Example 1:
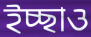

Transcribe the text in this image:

ইচ্ছাও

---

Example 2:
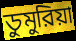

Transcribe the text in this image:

ডুমুরিয়া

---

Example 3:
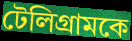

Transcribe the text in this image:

টেলিগ্রামকে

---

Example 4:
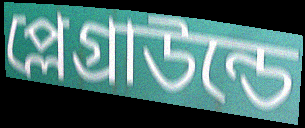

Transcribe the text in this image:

প্লেগ্রাউন্ডে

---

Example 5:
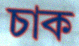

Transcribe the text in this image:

চাক